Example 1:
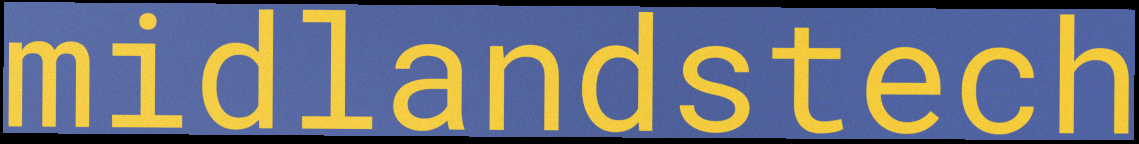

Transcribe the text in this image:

midlandstech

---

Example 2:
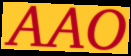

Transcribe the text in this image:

AAO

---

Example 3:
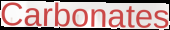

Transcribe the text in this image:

Carbonates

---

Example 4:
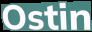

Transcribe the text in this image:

Ostin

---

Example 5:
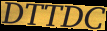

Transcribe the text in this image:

DTTDC